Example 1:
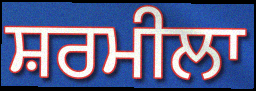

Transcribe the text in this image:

ਸ਼ਰਮੀਲਾ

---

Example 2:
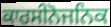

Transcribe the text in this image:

ਕਾਰਸੀਨੋਜਨਿਕ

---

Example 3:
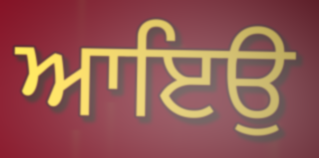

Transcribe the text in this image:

ਆਇਉ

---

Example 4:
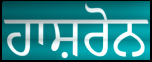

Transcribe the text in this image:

ਹਾਸ਼ਰੋਨ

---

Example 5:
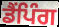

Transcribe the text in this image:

ਡੈਂਪਿੰਗ